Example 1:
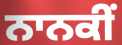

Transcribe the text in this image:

ਨਾਨਕੀਂ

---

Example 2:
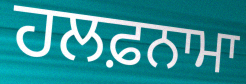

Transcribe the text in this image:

ਹਲਫ਼ਨਾਮਾ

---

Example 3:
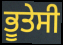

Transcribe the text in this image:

ਭੂਤੇਸੀ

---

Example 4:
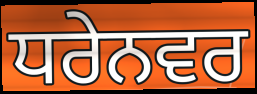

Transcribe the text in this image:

ਧਰੇਨਵਰ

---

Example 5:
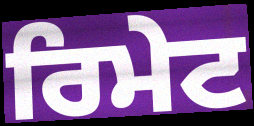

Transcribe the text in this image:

ਰਿਮੇਟ